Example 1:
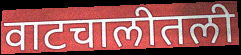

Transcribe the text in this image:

वाटचालीतली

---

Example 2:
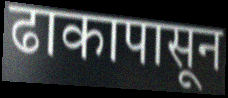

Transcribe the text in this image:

ढाकापासून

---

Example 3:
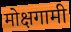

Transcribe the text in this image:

मोक्षगामी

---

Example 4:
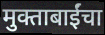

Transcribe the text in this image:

मुक्ताबाईंचा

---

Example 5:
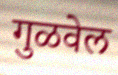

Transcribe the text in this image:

गुळवेल